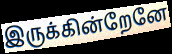
இருக்கின்றேனே